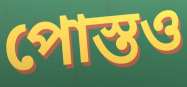
পোস্তও